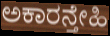
ಅಕಾರನ್ತೇಹಿ